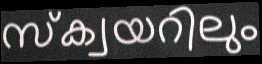
സ്ക്വയറിലും